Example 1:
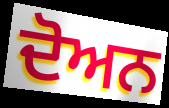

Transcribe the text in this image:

ਦੋਅਨ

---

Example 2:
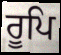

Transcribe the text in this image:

ਰੂਪਿ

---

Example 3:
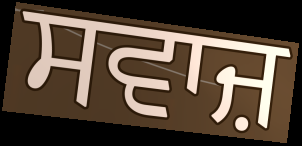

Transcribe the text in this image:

ਸਵਾਜ਼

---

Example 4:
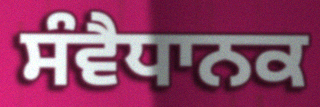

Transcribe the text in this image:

ਸੰਵੈਧਾਨਕ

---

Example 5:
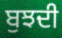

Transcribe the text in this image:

ਬੁਝਦੀ